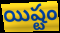
యిష్టం